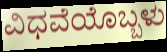
ವಿಧವೆಯೊಬ್ಬಳು